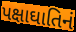
પક્ષાઘાતિનં